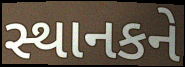
સ્થાનકને